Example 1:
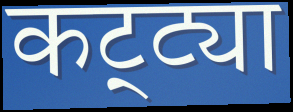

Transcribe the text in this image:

कट्ट्या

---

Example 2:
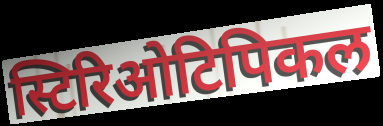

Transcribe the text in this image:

स्टिरिओटिपिकल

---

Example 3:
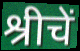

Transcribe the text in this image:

श्रीचें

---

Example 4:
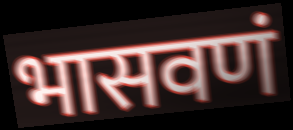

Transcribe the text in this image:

भासवणं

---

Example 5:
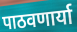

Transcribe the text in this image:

पाठवणार्या